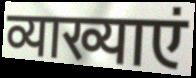
व्याख्याएं